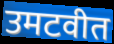
उमटवीत